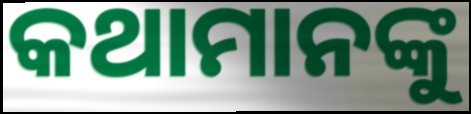
କଥାମାନଙ୍କୁ